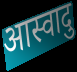
आस्वादु